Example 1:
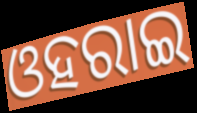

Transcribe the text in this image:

ଓହରାଇ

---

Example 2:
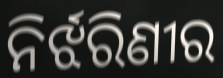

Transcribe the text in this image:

ନିର୍ଝରିଣୀର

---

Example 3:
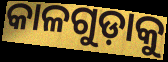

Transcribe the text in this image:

କାଳଗୁଡ଼ାକୁ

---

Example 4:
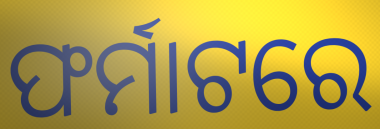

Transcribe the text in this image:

ଫର୍ମାଟରେ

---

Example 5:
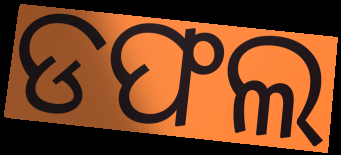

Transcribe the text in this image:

ଡଫଲ